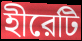
হীরেটি